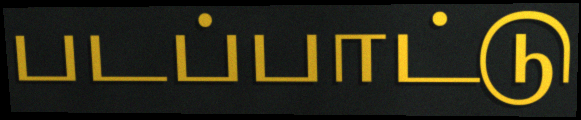
படப்பாட்டு